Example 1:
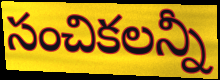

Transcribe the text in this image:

సంచికలన్నీ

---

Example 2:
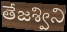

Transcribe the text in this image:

తేజశ్విని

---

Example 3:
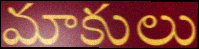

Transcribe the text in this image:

మాకులు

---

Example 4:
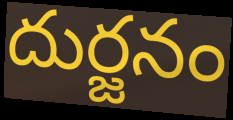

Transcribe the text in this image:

దుర్జనం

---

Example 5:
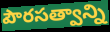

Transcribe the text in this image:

పౌరసత్వాన్ని